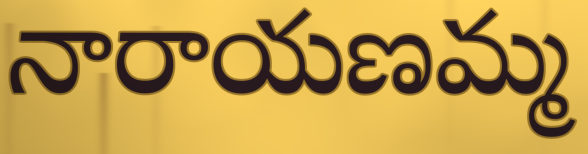
నారాయణమ్మ